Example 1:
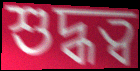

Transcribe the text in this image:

শুদ্ধত্ব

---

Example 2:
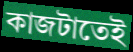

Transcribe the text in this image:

কাজটাতেই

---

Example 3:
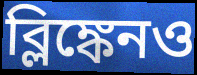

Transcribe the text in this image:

ব্লিঙ্কেনও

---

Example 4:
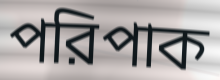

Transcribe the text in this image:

পরিপাক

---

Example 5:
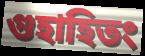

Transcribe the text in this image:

গুহাহিতং